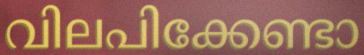
വിലപിക്കേണ്ടാ